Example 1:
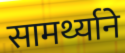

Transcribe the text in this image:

सामर्थ्याने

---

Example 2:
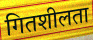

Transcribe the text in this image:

गितशीलता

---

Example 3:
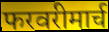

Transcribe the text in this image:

फरवरीमार्च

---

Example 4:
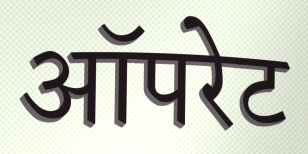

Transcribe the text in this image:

ऑपरेट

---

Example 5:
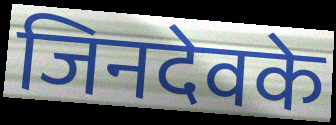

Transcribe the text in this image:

जिनदेवके